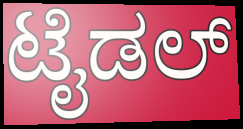
ಟೈಡಲ್